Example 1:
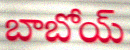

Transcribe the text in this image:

బాబోయ్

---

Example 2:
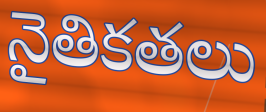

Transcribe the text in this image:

నైతికతలు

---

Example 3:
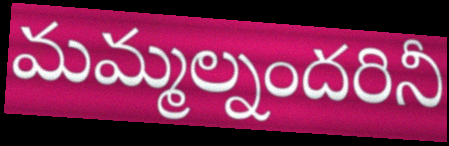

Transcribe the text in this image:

మమ్మల్నందరినీ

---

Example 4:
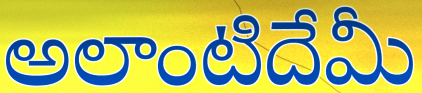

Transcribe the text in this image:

అలాంటిదేమీ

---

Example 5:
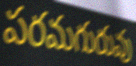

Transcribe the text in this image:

పరమగురువు